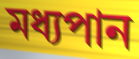
মধ্যপান